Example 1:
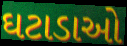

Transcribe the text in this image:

ઘટાડાઓ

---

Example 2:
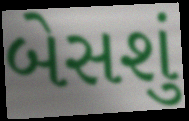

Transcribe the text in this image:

બેસશું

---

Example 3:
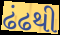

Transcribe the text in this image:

ઢંઢથી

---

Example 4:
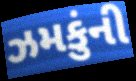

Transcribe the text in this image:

ઝમકુંની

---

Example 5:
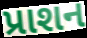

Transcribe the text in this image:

પ્રાશન